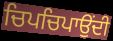
ਚਿਪਚਿਪਾਉਂਦੀ